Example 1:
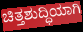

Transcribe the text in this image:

ಚಿತ್ತಶುದ್ಧಿಯಾಗಿ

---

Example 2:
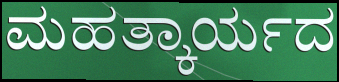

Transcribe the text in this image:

ಮಹತ್ಕಾರ್ಯದ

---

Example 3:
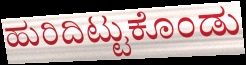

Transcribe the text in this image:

ಹುರಿದಿಟ್ಟುಕೊಂಡು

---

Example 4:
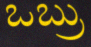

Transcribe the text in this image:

ಒಬ್ರು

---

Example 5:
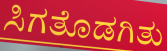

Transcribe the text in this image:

ಸಿಗತೊಡಗಿತು